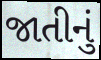
જાતીનું